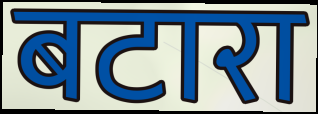
बटारा